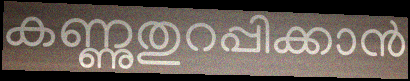
കണ്ണുതുറപ്പിക്കാൻ